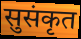
सुसंकृत